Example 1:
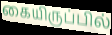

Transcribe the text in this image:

கையிருப்பில்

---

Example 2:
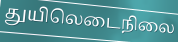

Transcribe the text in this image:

துயிலெடைநிலை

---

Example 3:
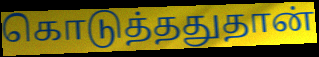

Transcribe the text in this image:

கொடுத்ததுதான்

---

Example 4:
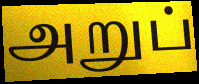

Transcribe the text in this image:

அறுப்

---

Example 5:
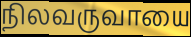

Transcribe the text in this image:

நிலவருவாயை